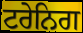
ਟਰੇਨਿਗ